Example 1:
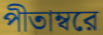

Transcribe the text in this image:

পীতাম্বরে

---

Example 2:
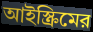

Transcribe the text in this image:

আইস্ক্রিমের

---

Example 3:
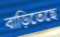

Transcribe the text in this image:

বাড়িতেছে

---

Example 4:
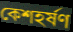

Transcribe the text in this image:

কেশহর্ষণ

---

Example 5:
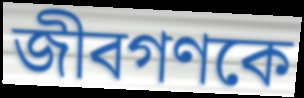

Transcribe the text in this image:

জীবগণকে